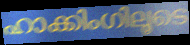
ഹാക്കിംഗിലൂടെ